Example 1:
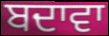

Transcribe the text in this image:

ਬਦਾਵਾ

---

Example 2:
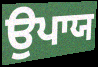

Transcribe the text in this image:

ਉਪਾਯ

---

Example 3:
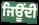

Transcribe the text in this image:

ਜਿਊਂਦੀ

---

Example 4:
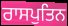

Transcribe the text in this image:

ਰਾਸਪੁਤਿਨ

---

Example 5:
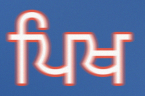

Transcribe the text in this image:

ਪਿਖ